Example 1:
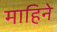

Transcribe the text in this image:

माहिने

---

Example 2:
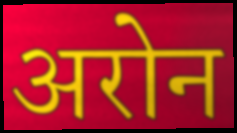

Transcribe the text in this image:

अरोन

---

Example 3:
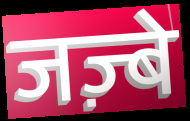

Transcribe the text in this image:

जज़्बे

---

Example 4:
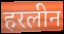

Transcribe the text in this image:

हरलीन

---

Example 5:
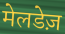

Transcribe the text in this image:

मेलडेज़